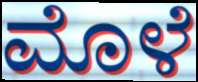
ಮೊಳೆ